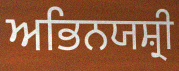
ਅਭਿਨਯਸ਼੍ਰੀ